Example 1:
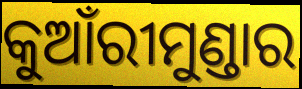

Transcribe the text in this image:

କୁଆଁରୀମୁଣ୍ଡାର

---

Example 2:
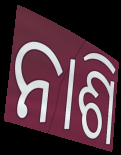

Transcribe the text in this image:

ନାଶି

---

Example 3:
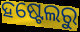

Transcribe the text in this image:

ହଷ୍ଟେଲରୁ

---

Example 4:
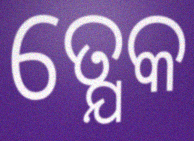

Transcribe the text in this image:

ତ୍ଯେକ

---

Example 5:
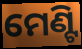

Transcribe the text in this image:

ମେଣ୍ଟି